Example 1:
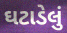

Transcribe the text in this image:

ઘટાડેલું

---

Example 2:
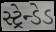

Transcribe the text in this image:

સ્ટ્રેન્ડેડ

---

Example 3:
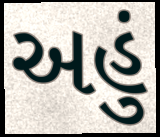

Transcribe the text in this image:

અહું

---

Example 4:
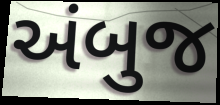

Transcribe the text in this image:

અંબુજ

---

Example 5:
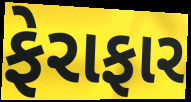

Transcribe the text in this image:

ફેરાફાર